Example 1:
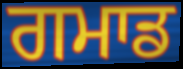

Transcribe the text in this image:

ਗਮਾਡ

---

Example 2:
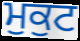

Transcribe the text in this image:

ਮੁਕੁਟ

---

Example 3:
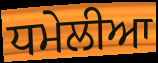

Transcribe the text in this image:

ਧਮੇਲੀਆ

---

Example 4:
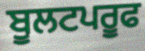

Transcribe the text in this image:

ਬੂਲਟਪਰੂਫ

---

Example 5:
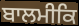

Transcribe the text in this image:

ਬਾਲਮੀਕਿ